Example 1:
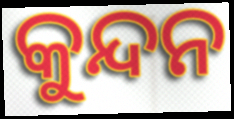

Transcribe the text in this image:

କୁନ୍ଦନ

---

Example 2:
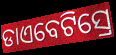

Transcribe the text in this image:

ଡାଏବେଟିସ୍ରେ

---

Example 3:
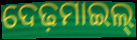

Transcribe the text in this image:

ଦେଢ଼ମାଇଲ୍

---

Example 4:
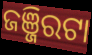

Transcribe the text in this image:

ଜଞ୍ଜିରଟା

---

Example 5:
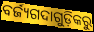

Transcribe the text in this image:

ବର୍ଜ୍ୟଗଦାଗୁଡ଼ିକରୁ